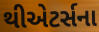
થીએટર્સના